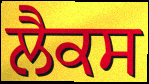
ਲੈਕਸ